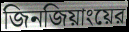
জিনজিয়াংয়ের